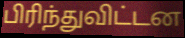
பிரிந்துவிட்டன